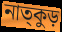
নাত্কুড়